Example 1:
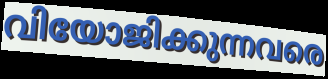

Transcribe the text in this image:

വിയോജിക്കുന്നവരെ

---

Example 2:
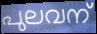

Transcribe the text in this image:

പുലവന്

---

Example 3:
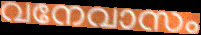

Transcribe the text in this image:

വനേവാസം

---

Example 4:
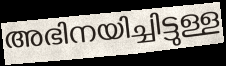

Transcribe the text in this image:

അഭിനയിച്ചിട്ടുള്ള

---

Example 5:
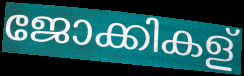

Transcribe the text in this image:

ജോക്കികള്